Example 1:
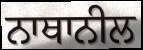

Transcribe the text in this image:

ਨਾਥਾਨੀਲ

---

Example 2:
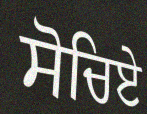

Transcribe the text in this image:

ਸੋਚਿਏ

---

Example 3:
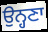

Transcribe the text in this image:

ਉਨ੍ਹਣਾ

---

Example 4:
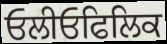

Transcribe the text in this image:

ਓਲੀਓਫਿਲਿਕ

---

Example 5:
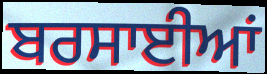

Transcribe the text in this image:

ਬਰਸਾਈਆਂ